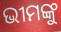
ଭୀମଙ୍କୁ